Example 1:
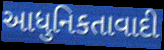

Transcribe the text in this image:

આધુનિકતાવાદી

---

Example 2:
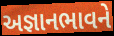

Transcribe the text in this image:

અજ્ઞાનભાવને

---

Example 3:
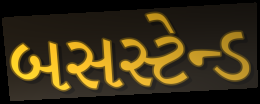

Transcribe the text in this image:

બસસ્ટેન્ડ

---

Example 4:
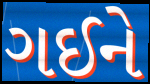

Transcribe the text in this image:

ગઈને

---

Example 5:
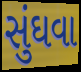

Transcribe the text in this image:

સુંઘવા